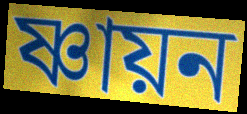
ষ্ণায়ন